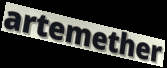
artemether